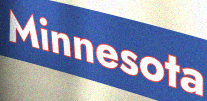
Minnesota